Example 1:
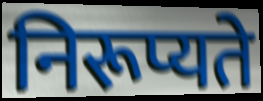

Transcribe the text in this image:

निरूप्यते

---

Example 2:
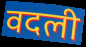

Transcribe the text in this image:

वदली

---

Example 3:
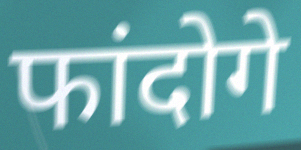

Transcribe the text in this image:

फांदोगे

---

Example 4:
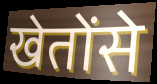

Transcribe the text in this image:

खेतोंसे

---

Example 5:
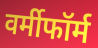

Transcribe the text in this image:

वर्मीफॉर्म